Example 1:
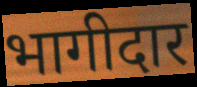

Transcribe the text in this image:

भागीदार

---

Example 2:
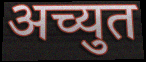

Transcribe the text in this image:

अच्‍युत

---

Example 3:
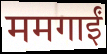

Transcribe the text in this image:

ममगाईं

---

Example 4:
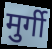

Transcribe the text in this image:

मुर्गी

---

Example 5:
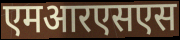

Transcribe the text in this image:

एमआरएसएस